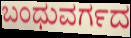
ಬಂಧುವರ್ಗದ